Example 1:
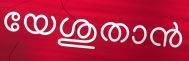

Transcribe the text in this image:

യേശുതാൻ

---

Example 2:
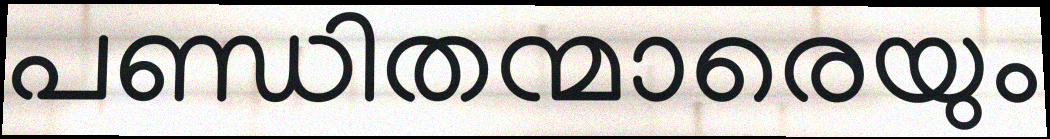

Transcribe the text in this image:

പണ്ഡിതന്മാരെയും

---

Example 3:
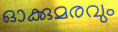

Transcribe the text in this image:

ഓക്കുമരവും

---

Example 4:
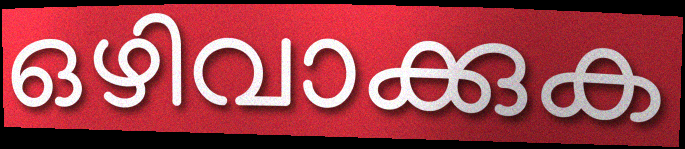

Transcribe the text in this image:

ഒഴിവാക്കുക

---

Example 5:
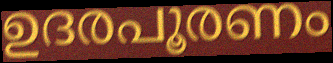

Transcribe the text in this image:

ഉദരപൂരണം